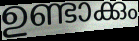
ഉണ്ടാക്കും